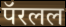
पॅरलल